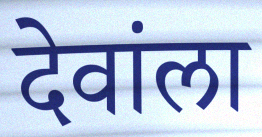
देवांला